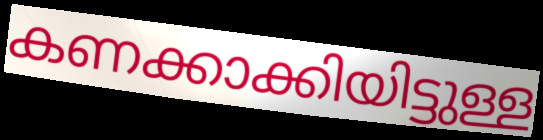
കണക്കാക്കിയിട്ടുള്ള